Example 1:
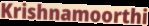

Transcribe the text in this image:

Krishnamoorthi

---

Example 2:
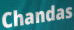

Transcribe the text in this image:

Chandas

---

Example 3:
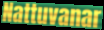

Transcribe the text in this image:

Nattuvanar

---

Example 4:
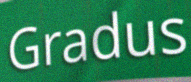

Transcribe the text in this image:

Gradus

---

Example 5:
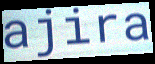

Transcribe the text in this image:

ajira